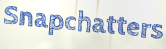
Snapchatters